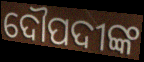
ଦୌପଦୀଙ୍କ